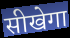
सीखेगा